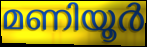
മണിയൂർ